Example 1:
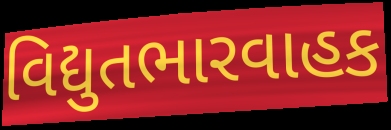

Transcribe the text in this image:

વિદ્યુતભારવાહક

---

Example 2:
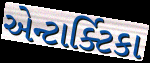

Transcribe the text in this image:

એન્ટાર્ક્ટિકા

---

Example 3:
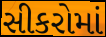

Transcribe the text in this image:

સીકરોમાં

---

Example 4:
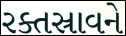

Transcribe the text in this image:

રક્તસ્રાવને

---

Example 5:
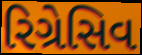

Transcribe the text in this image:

રિગ્રેસિવ